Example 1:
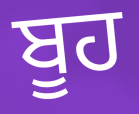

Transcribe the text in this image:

ਬੂਹ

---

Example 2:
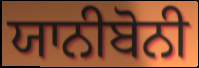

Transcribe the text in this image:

ਯਾਨੀਬੋਨੀ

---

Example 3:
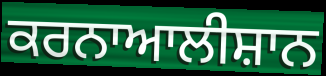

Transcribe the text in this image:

ਕਰਨਾਆਲੀਸ਼ਾਨ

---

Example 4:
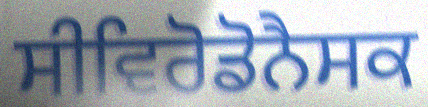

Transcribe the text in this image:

ਸੀਵਿਰੋਡੋਨੈਸਕ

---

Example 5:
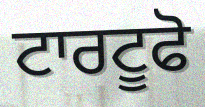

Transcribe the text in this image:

ਟਾਰਟੂਫੋ